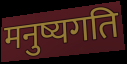
मनुष्यगति